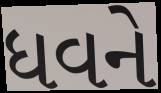
ધવને